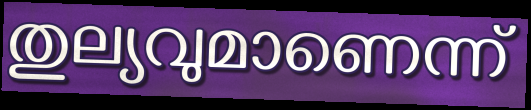
തുല്യവുമാണെന്ന്